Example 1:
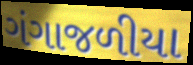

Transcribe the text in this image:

ગંગાજળીયા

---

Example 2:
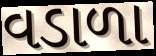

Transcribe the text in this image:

વડાળા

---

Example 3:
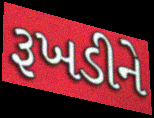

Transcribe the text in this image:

રૂખડીને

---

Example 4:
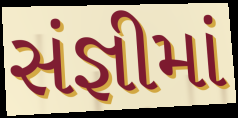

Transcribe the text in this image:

સંજ્ઞીમાં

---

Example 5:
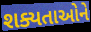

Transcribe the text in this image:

શક્યતાઓને